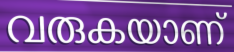
വരുകയാണ്